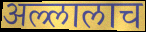
अल्लालाच